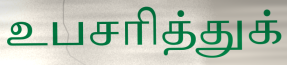
உபசரித்துக்